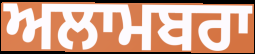
ਅਲਾਮਬਰਾ